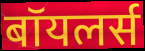
बॉयलर्स